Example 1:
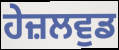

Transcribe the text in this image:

ਹੇਜ਼ਲਵੁਡ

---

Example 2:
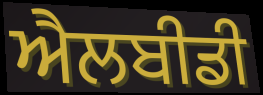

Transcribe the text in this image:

ਐਲਬੀਡੀ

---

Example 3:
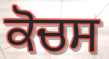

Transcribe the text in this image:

ਕੋਚਸ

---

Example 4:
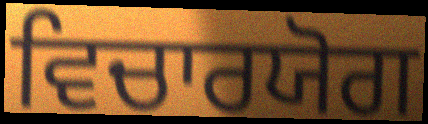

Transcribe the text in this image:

ਵਿਚਾਰਯੋਗ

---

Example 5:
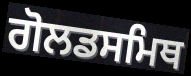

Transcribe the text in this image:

ਗੋਲਡਸਮਿਥ